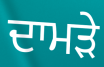
ਦਾਮੜੇ